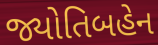
જ્યોતિબહેન